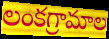
లంకగ్రామాల